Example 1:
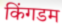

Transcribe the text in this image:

किंगडम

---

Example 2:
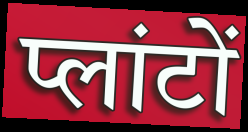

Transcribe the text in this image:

प्लांटों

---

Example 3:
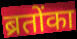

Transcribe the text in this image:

ब्रतोंका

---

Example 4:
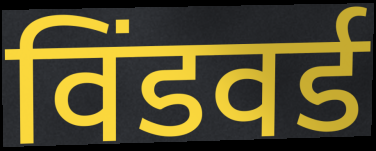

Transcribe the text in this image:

विंडवर्ड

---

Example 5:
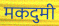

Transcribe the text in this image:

मकदुमी